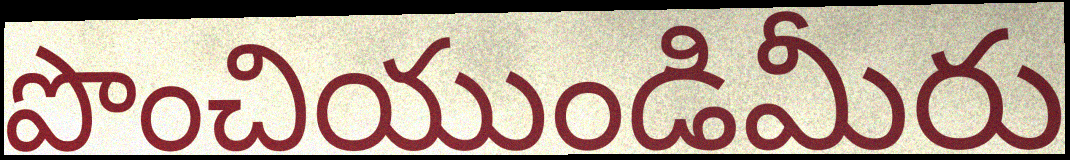
పొంచియుండిమీరు